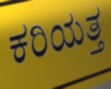
ಕರಿಯತ್ತ